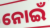
ନୋଇଁ